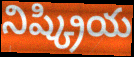
నిష్క్రియ